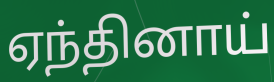
ஏந்தினாய்